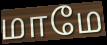
மாமே